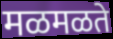
मळमळते